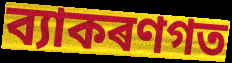
ব্যাকৰণগত